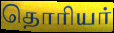
தொரியர்